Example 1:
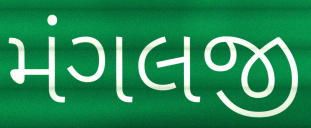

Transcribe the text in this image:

મંગલજી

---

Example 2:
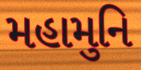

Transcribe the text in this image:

મહામુનિ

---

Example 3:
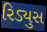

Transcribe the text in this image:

રિડ્યુસ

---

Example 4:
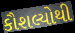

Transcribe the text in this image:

કૌશલ્યોથી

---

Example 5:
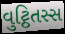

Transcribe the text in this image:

વુટ્ઠિતસ્સ